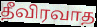
தீவிரவாத